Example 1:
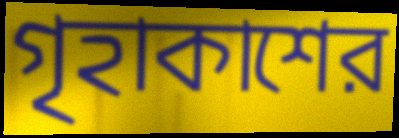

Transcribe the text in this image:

গৃহাকাশের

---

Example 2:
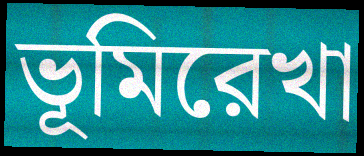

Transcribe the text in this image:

ভূমিরেখা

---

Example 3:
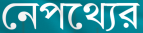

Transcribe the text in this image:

নেপথ্যের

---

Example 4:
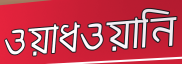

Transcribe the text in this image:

ওয়াধওয়ানি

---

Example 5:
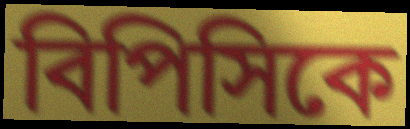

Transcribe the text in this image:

বিপিসিকে